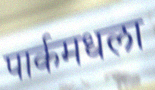
पार्कमधला